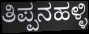
ತಿಪ್ಪನಹಳ್ಳಿ